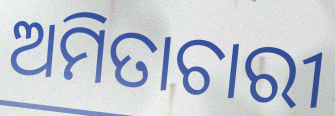
ଅମିତାଚାରୀ